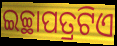
ଇଚ୍ଛାପତ୍ରଟିଏ